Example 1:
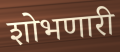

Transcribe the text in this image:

शोभणारी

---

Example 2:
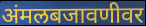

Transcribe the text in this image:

अंमलबजावणीवर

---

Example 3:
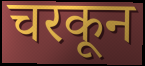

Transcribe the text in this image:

चरकून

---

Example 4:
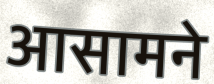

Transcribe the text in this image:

आसामने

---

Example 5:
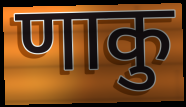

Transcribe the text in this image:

णाकु